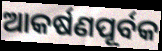
ଆକର୍ଷଣପୂର୍ବକ